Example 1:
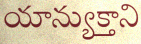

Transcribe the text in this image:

యాన్యుక్తాని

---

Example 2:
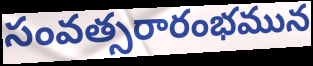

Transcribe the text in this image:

సంవత్సరారంభమున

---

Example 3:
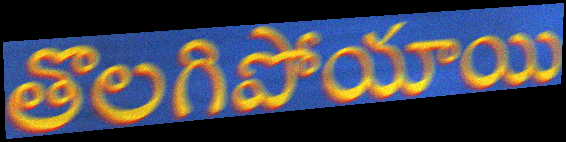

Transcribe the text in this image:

తొలగిపోయాయి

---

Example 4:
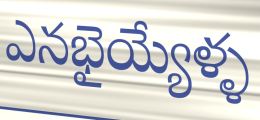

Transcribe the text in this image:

ఎనభైయ్యేళ్ళ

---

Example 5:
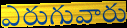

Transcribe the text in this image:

ఎరుగువారు